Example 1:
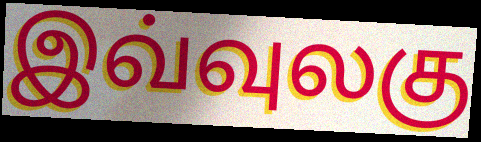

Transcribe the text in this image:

இவ்வுலகு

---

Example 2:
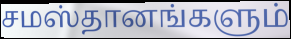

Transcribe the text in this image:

சமஸ்தானங்களும்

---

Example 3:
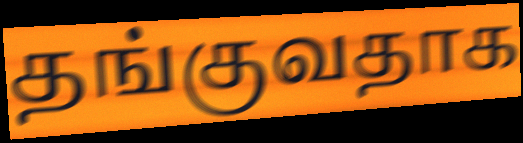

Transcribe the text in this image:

தங்குவதாக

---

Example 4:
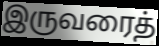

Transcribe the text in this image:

இருவரைத்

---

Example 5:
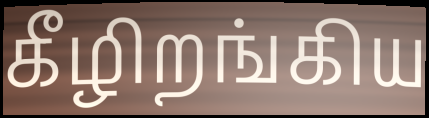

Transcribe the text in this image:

கீழிறங்கிய